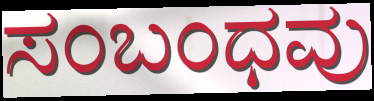
ಸಂಬಂಧವು